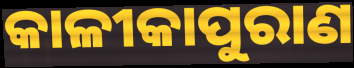
କାଳୀକାପୁରାଣ